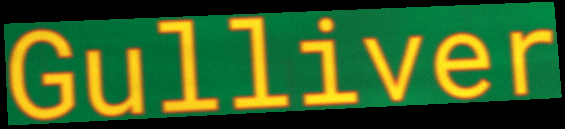
Gulliver